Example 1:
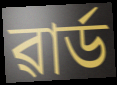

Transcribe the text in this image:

ৱাৰ্ড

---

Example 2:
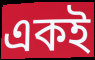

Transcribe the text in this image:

একই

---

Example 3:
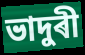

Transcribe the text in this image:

ভাদুৰী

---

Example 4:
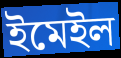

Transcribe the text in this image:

ইমেইল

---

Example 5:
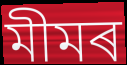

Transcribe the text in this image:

মীমৰ